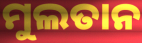
ମୁଲତାନ